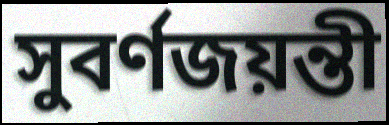
সুবর্ণজয়ন্তী